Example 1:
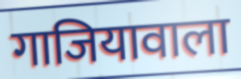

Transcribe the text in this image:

गाजियावाला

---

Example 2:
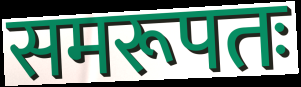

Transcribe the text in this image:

समरूपतः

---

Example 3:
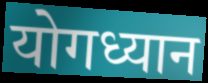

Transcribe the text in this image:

योगध्यान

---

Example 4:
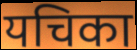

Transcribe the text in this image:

यचिका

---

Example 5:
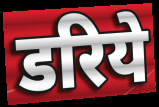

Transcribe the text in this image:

डरिये